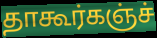
தாகூர்கஞ்ச்